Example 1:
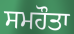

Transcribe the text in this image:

ਸਮਹੌਤਾ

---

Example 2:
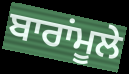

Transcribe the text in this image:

ਬਾਰਾਂਮੂਲੇ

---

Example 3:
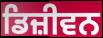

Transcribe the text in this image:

ਡਿਜ਼ੀਵਨ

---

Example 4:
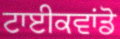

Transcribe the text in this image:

ਟਾਈਕਵਾਂਡੋ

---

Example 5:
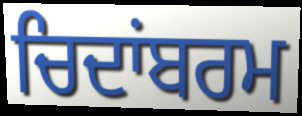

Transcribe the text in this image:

ਚਿਦਾਂਬਰਮ